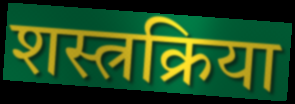
शस्त्रक्रिया